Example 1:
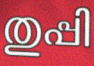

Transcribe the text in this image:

തുപ്പി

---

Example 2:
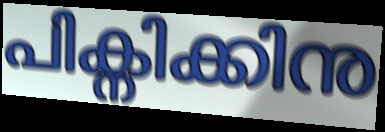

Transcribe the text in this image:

പിക്നിക്കിനു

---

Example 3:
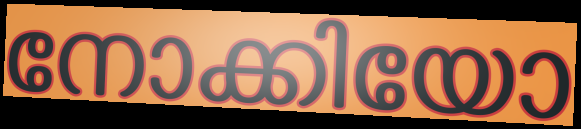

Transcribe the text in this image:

നോക്കിയോ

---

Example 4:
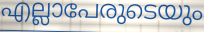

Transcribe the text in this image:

എല്ലാപേരുടെയും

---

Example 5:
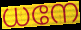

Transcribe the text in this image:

ധനേ